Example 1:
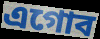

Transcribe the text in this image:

এগোব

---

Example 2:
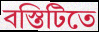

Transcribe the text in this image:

বস্তিটিতে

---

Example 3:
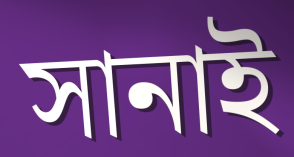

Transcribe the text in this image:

সানাই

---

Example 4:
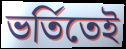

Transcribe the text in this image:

ভর্তিতেই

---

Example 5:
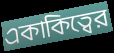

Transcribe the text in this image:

একাকিত্বের